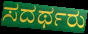
ಸದರ್ಥರು